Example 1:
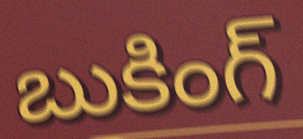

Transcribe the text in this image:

బుకింగ్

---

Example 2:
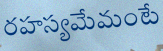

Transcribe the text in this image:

రహస్యమేమంటే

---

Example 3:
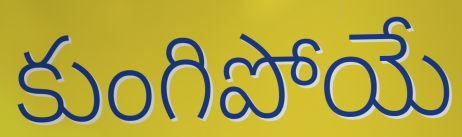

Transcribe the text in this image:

కుంగిపోయే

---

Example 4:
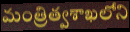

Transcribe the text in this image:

మంత్రిత్వశాఖలోని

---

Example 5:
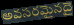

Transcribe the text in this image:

అవసరమైనదై